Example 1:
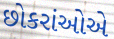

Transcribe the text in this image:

છોકરાંઓએ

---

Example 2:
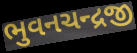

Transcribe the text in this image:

ભુવનચન્દ્રજી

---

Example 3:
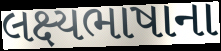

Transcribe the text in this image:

લક્ષ્યભાષાના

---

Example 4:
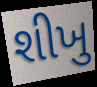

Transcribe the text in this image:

શીખુ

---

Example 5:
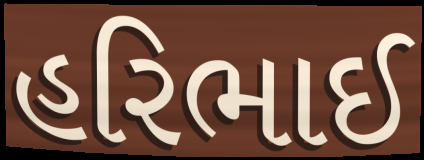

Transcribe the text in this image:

હરિભાઈ